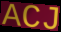
ACJ